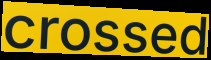
crossed